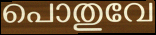
പൊതുവേ